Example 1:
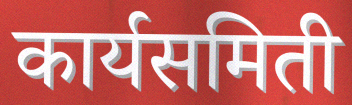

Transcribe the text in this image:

कार्यसमिती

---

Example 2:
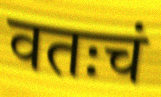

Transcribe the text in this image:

वतःचं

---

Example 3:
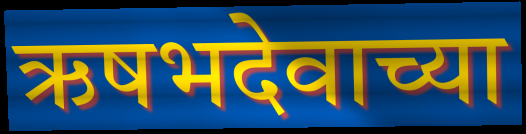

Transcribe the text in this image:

ऋषभदेवाच्या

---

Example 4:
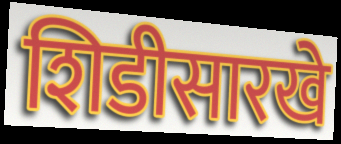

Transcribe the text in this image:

शिडीसारखे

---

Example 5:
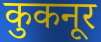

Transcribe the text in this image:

कुकनूर